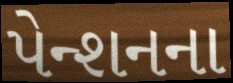
પેન્શનના